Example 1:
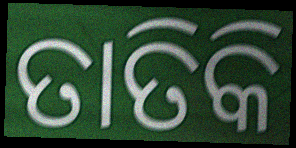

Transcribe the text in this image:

ତାତିକି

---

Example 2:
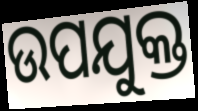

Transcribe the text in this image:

ଉପଯୁକ୍ତ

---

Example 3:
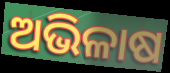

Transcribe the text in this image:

ଅଭିଳାଷ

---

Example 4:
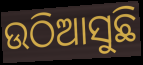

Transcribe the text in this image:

ଉଠିଆସୁଛି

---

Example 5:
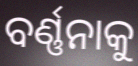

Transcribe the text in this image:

ବର୍ଣ୍ଣନାକୁ